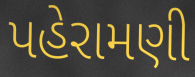
પહેરામણી